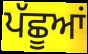
ਪੱਛੂਆਂ